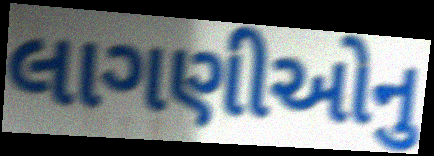
લાગણીઓનુ